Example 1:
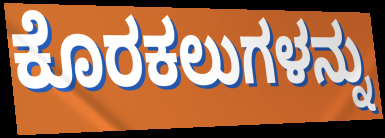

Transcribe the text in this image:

ಕೊರಕಲುಗಳನ್ನು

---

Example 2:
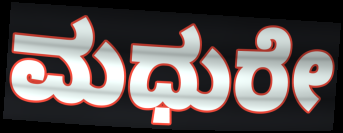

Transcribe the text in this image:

ಮಧುರೇ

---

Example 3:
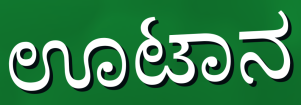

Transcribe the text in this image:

ಊಟಾನ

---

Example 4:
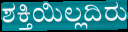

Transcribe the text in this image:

ಶಕ್ತಿಯಿಲ್ಲದಿರು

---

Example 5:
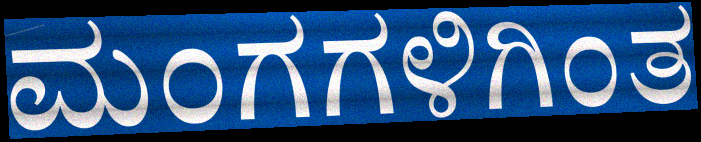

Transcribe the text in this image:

ಮಂಗಗಳಿಗಿಂತ